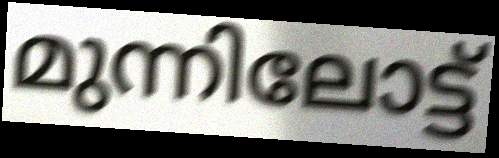
മുന്നിലോട്ട്